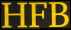
HFB